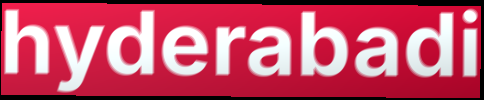
hyderabadi